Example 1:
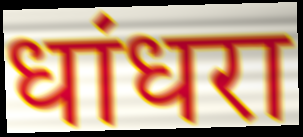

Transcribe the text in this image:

धांधरा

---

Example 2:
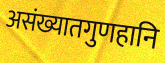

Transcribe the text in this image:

असंख्यातगुणहानि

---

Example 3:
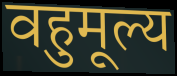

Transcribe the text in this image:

वहुमूल्य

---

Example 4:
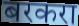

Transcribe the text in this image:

बरकरा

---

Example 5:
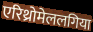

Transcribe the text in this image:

एरिथ्रोमेललगिया